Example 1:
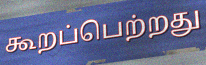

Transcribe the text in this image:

கூறப்பெற்றது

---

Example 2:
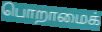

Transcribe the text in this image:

பொறாமைக்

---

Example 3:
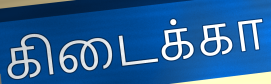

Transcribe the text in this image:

கிடைக்கா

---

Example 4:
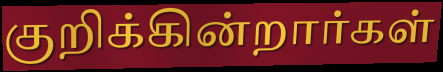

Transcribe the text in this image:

குறிக்கின்றார்கள்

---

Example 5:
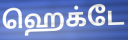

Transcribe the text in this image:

ஹெக்டே